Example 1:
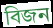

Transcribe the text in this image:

বিজন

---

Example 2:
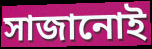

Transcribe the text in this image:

সাজানোই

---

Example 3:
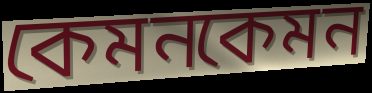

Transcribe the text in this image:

কেমনকেমন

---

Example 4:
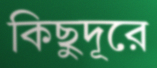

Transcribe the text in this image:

কিছুদূরে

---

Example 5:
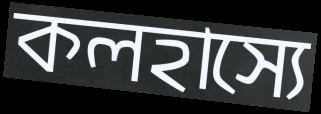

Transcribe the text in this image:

কলহাস্যে